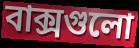
বাক্সগুলো